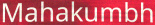
Mahakumbh